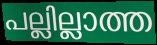
പല്ലില്ലാത്ത